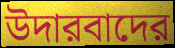
উদারবাদের